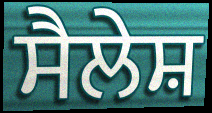
ਸੈਲੇਸ਼